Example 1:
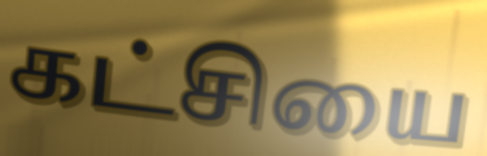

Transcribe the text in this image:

கட்சியை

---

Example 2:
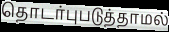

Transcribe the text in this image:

தொடர்புபடுத்தாமல்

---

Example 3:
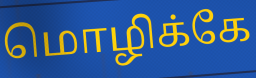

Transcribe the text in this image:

மொழிக்கே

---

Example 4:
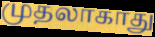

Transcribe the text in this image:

முதலாகாது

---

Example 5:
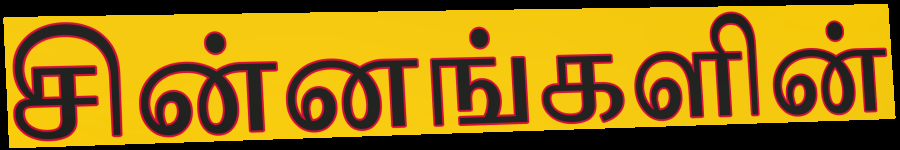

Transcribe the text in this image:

சின்னங்களின்